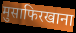
मुसाफिरखाना